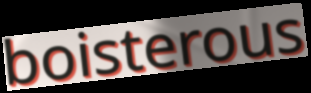
boisterous